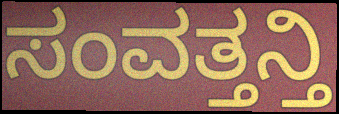
ಸಂವತ್ತನ್ತಿ